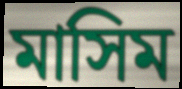
মাসিম